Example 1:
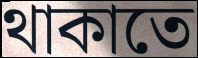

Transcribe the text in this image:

থাকাতে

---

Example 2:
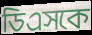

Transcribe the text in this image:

ডিএসকে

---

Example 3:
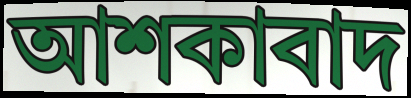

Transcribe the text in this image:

আশকাবাদ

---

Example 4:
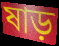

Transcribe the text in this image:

ষাড়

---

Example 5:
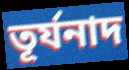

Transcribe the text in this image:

তূর্যনাদ